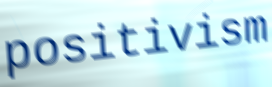
positivism